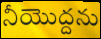
నీయొద్దను